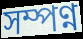
সম্পণ্ন